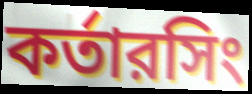
কর্তারসিং